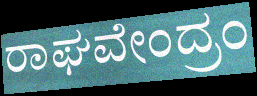
ರಾಘವೇಂದ್ರಂ